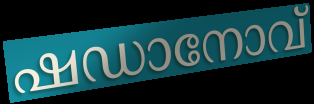
ഷഡാനോവ്